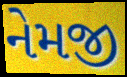
નેમજી